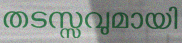
തടസ്സവുമായി